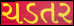
ચડતર